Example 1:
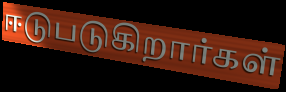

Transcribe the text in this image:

ஈடுபடுகிறார்கள்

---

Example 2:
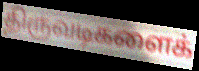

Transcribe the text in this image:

திருவடிகளைக்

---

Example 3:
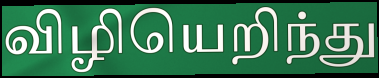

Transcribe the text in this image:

விழியெறிந்து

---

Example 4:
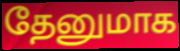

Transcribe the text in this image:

தேனுமாக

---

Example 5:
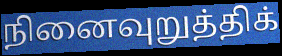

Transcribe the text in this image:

நினைவுறுத்திக்